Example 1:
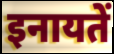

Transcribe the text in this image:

इनायतें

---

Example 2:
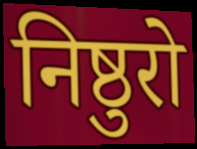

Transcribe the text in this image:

निष्ठुरो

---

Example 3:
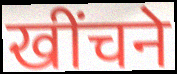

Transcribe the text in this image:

खींचने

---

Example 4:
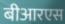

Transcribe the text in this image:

बीआरएस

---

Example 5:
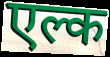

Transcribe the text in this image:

एल्क